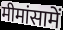
मीमांसामें